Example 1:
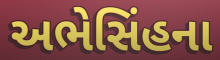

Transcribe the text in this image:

અભેસિંહના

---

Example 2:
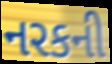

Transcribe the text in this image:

નરકની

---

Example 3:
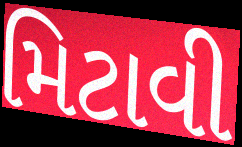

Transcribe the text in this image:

મિટાવી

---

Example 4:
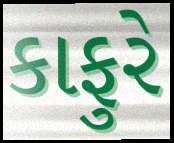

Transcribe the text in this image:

કાફુરે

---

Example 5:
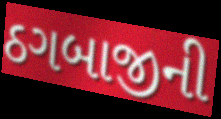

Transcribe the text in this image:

ઠગબાજીની